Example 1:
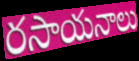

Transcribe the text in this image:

రసాయనాలు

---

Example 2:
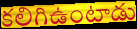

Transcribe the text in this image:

కలిగిఉంటాడు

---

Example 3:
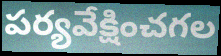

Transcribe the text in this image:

పర్యవేక్షించగల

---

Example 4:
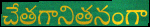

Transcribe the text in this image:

చేతగానితనంగా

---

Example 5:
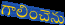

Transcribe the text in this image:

గాలించెను